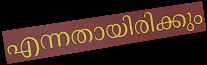
എന്നതായിരിക്കും